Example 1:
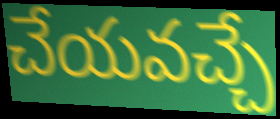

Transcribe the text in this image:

చేయవచ్చే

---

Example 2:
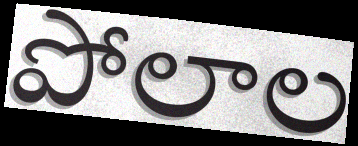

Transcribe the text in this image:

పోలాల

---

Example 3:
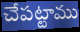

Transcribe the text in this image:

చేపట్టాము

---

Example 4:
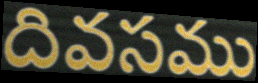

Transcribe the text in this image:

దివసము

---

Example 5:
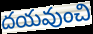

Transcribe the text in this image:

దయవుంచి